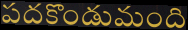
పదకొండుమంది